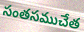
సంతసముచేత